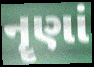
નૄણાં